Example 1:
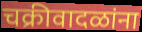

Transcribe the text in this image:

चक्रीवादळांना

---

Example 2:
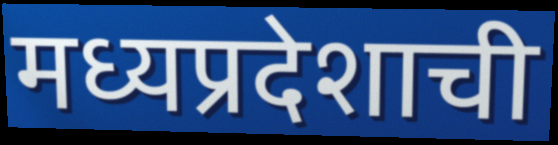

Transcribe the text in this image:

मध्यप्रदेशाची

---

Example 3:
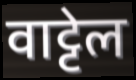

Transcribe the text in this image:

वाट्टेल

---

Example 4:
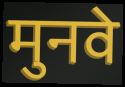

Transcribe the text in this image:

मुनवे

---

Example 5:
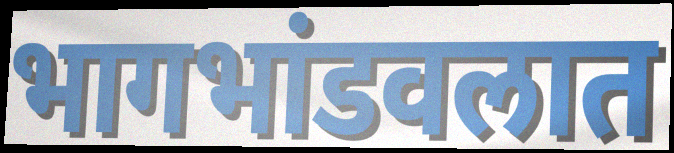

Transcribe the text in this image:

भागभांडवलात